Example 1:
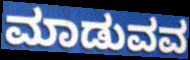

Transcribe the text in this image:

ಮಾಡುವವ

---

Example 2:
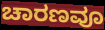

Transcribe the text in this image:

ಚಾರಣವೂ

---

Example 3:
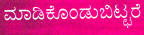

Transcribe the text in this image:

ಮಾಡಿಕೊಂಡುಬಿಟ್ಟರೆ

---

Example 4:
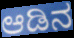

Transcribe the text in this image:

ಆಡಿನ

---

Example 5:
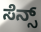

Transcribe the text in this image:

ಸೆನ್ಸ್